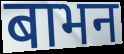
बाभन